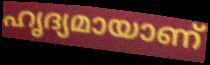
ഹൃദ്യമായാണ്